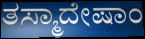
ತಸ್ಮಾದೇಷಾಂ